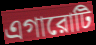
এগারোটি